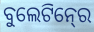
ବୁଲେଟିନ୍‍ରେ